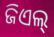
ଜିଏଲ୍